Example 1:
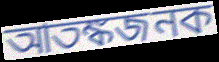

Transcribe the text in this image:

আতঙ্কজনক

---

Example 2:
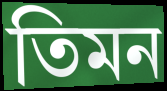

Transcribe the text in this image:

তিমন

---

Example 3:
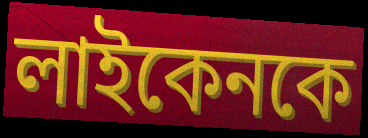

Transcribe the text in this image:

লাইকেনকে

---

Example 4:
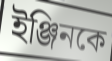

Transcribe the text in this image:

ইঞ্জিনকে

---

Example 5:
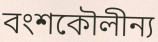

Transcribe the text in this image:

বংশকৌলীন্য